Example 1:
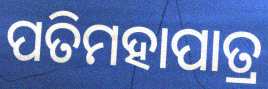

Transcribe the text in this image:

ପତିମହାପାତ୍ର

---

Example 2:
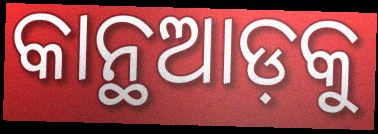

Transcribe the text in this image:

କାନ୍ଥଆଡ଼କୁ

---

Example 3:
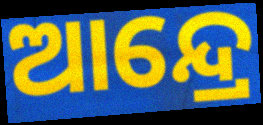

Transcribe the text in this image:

ଆନ୍ଦ୍ରେ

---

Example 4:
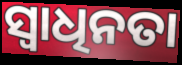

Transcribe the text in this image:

ସ୍ୱାଧିନତା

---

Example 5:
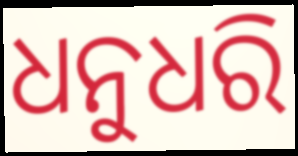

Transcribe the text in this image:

ଧନୁଧରି